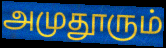
அமுதூரும்